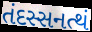
તંદસ્સનત્થં